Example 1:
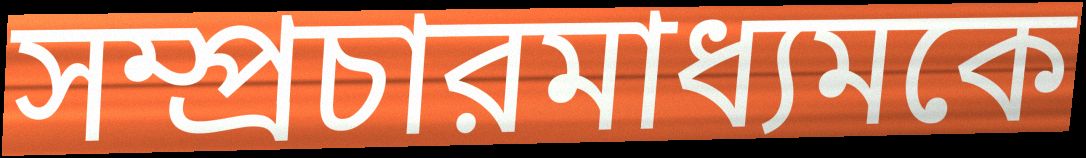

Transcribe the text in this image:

সম্প্রচারমাধ্যমকে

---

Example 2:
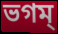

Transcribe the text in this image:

ভগম্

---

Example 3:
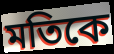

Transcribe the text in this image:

মতিকে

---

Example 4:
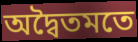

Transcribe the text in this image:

অদ্বৈতমতে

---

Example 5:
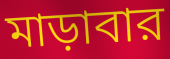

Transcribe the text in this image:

মাড়াবার